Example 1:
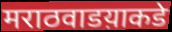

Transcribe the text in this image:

मराठवाडय़ाकडे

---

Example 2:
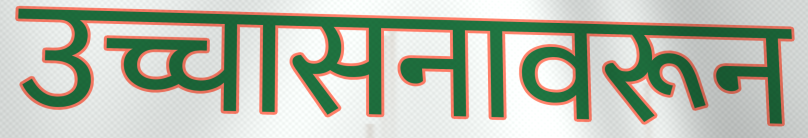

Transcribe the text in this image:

उच्चासनावरून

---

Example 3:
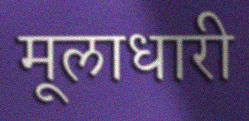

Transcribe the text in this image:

मूलाधारी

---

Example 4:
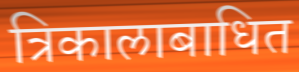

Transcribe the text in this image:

त्रिकालाबाधित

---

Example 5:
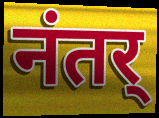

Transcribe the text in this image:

नंतर्